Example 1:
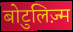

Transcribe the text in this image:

बोटुलिज़्म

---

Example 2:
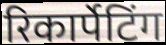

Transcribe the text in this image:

रिकार्पेटिंग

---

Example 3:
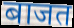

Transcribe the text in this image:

बाजत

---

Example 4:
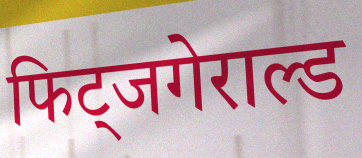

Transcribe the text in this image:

फिट्जगेराल्ड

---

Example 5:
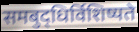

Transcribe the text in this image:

समबुद्धिर्विशिष्यते